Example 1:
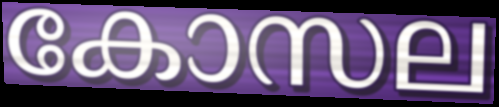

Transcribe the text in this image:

കോസല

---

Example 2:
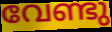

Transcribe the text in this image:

വേണ്ടു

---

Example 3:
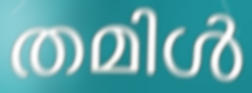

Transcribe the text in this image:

തമിൾ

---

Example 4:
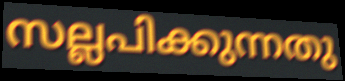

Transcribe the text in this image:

സല്ലപിക്കുന്നതു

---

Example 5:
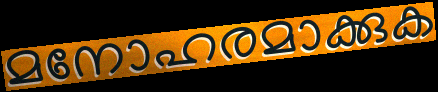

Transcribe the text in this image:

മനോഹരമാക്കുക